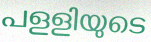
പളളിയുടെ